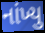
નાંખ્યુ